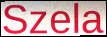
Szela